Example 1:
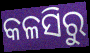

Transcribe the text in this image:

କଳସିରୁ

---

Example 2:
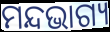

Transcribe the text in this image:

ମନ୍ଦଭାଗ୍ୟ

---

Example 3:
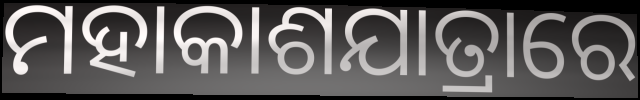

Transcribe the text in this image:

ମହାକାଶଯାତ୍ରାରେ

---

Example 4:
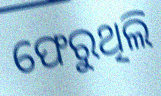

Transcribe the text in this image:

ଫେରୁଥିଲି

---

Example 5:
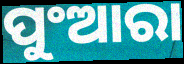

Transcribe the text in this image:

ପୁଂଆରା